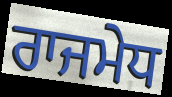
ਰਾਜਮੇਧ